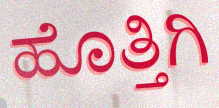
ಹೊತ್ತಿಗಿ